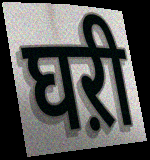
घऱी